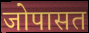
जोपासत